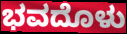
ಭವದೊಳು